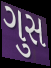
ગુસ